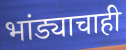
भांड्याचाही